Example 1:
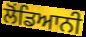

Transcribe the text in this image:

ਲੋਂਡਿਆਨੀ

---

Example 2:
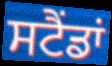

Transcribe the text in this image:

ਸਟੈਂਡਾਂ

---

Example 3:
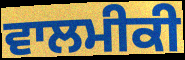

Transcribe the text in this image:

ਵਾਲਮੀਕੀ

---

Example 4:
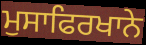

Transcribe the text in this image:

ਮੁਸਾਫਿਰਖਾਨੇ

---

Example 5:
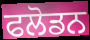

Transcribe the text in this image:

ਫਲੋਡਨ